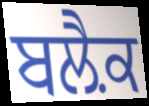
ਬਲ਼ੈਕ